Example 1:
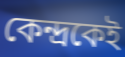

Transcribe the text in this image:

কেন্দ্রকেই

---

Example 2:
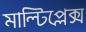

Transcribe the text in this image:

মাল্টিপ্লেক্স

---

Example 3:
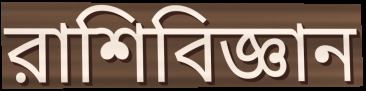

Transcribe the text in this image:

রাশিবিজ্ঞান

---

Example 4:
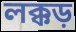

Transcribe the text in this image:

লক্কড়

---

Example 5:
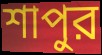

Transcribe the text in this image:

শাপুর